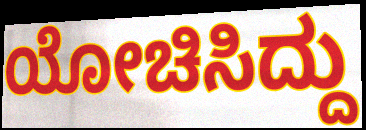
ಯೋಚಿಸಿದ್ದು